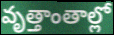
వృత్తాంతాల్లో